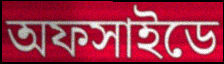
অফসাইডে